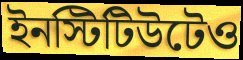
ইনস্টিটিউটেও